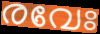
രവേഃ